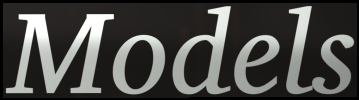
Models